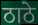
ठाठे